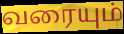
வரையும்